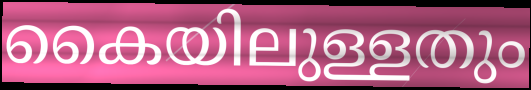
കൈയിലുള്ളതും